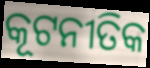
କୂଟନୀତିକ